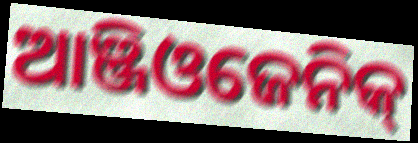
ଆଞ୍ଜିଓଜେନିକ୍